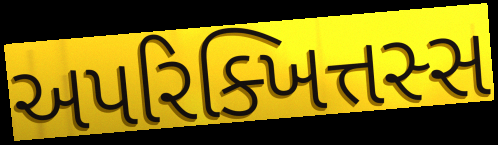
અપરિક્ખિત્તસ્સ